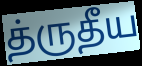
த்ருதீய